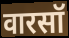
वारसॉ